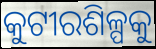
କୁଟୀରଶିଳ୍ପକୁ